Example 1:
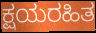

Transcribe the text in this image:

ಕ್ಷಯರಹಿತ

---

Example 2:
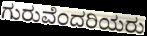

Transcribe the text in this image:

ಗುರುವೆಂದರಿಯರು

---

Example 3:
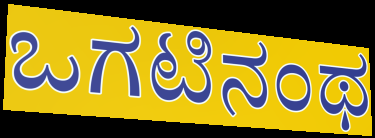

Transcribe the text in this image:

ಒಗಟಿನಂಥ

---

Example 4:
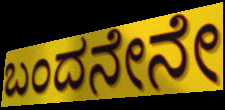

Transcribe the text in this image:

ಬಂದನೇನೇ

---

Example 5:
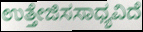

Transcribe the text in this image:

ಉತ್ತೇಜಿಸಸಾಧ್ಯವಿದೆ